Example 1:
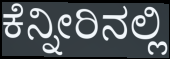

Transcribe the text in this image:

ಕೆನ್ನೀರಿನಲ್ಲಿ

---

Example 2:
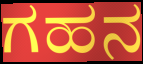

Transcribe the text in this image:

ಗಹನ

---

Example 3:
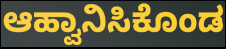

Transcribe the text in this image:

ಆಹ್ವಾನಿಸಿಕೊಂಡ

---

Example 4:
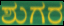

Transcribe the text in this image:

ಶುಗರ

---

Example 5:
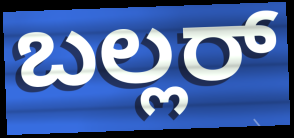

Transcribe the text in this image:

ಬಲ್ಲರ್